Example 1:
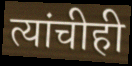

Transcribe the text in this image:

त्यांचीही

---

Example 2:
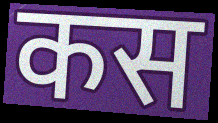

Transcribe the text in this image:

कस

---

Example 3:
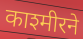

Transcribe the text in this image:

काश्मीरने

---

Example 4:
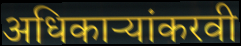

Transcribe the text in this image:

अधिकाऱ्यांकरवी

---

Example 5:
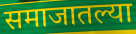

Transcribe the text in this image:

समाजातल्या